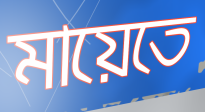
মায়েতে